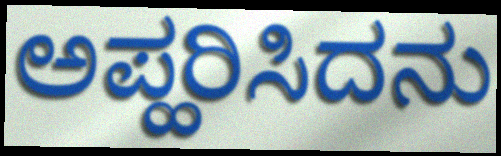
ಅಪ್ಹರಿಸಿದನು